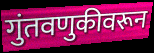
गुंतवणुकीवरून